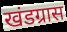
खंडग्रास